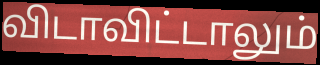
விடாவிட்டாலும்